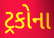
ટ્રકોના